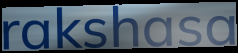
rakshasa